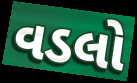
વડલો